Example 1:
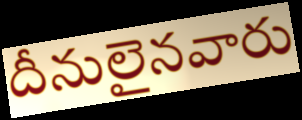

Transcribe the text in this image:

దీనులైనవారు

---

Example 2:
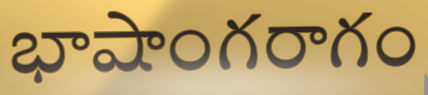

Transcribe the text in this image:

భాషాంగరాగం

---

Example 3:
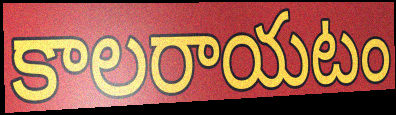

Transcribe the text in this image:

కాలరాయటం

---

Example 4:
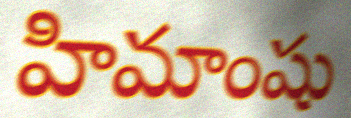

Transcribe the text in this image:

హిమాంషు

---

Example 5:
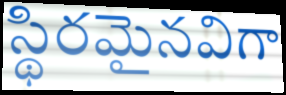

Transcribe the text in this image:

స్థిరమైనవిగా